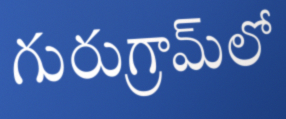
గురుగ్రామ్‌లో